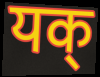
यक्